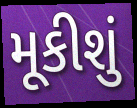
મૂકીશું